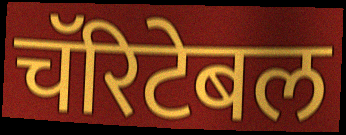
चॅरिटेबल